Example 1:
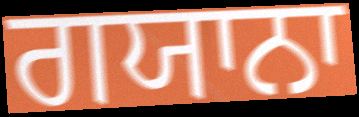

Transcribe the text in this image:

ਗਯਾਨਾ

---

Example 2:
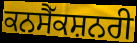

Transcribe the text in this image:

ਕਨਸੈੱਕਸ਼ਨਰੀ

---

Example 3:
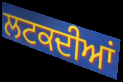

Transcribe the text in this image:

ਲਟਕਦੀਆਂ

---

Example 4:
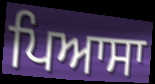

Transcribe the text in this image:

ਪਿਆਸਾ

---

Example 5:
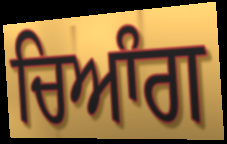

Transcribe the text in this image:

ਚਿਆੰਗ